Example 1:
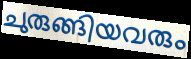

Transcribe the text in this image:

ചുരുങ്ങിയവരും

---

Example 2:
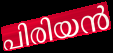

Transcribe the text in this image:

പിരിയൻ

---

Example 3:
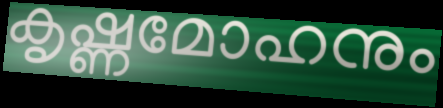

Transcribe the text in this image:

കൃഷ്ണമോഹനും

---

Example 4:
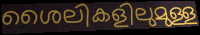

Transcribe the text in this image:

ശൈലികളിലുമുള്ള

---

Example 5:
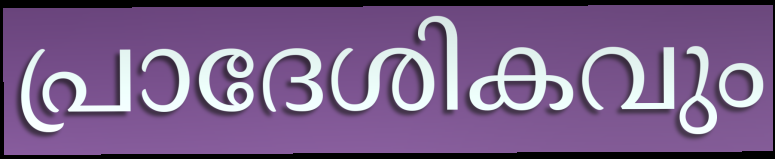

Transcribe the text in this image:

പ്രാദേശികവും